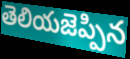
తెలియజెప్పిన